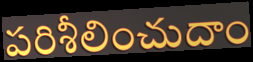
పరిశీలించుదాం